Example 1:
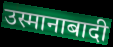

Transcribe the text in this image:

उस्मानाबादी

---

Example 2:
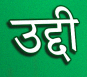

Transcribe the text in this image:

उद्दी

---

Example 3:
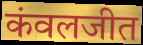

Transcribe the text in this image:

कंवलजीत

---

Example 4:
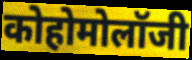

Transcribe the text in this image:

कोहोमोलॉजी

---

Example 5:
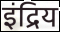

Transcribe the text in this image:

इंद्रिय